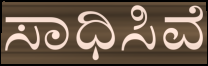
ಸಾಧಿಸಿವೆ